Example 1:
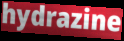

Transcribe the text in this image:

hydrazine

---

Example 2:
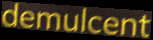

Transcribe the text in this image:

demulcent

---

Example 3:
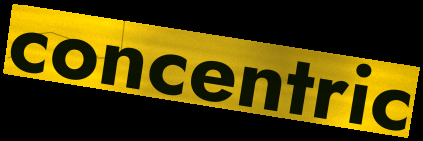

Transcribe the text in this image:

concentric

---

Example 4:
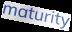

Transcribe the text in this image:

maturity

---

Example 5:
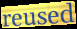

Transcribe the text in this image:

reused